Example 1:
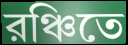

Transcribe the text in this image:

রঞ্চিতে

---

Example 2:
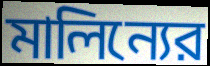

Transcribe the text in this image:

মালিন্যের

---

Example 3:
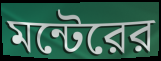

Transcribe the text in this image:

মন্টেরের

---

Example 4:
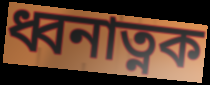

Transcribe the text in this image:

ধ্বনাত্নক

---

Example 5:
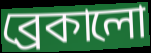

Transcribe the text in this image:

ব্রেকালো